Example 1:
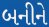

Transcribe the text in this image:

બનીને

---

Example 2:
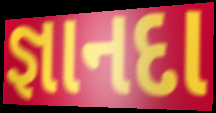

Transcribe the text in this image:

જ્ઞાનદા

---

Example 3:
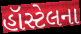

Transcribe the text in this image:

હૉસ્ટેલના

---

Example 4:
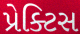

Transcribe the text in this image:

પ્રેક્ટિસ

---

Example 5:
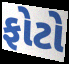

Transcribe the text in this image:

ફોટો